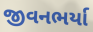
જીવનભર્યા